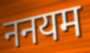
ननयम